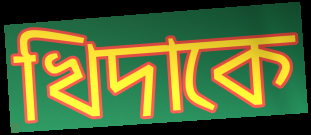
খিদাকে